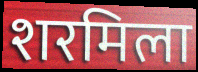
शरमिला